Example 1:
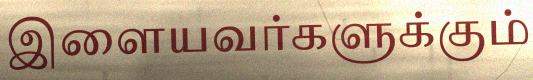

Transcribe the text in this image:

இளையவர்களுக்கும்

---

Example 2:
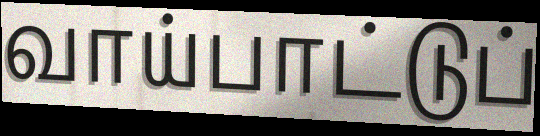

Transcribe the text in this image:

வாய்பாட்டுப்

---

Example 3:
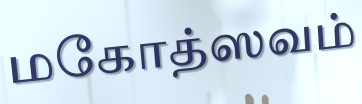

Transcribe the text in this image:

மகோத்ஸவம்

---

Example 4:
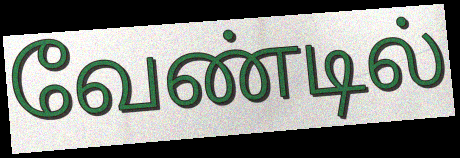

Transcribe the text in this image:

வேண்டில்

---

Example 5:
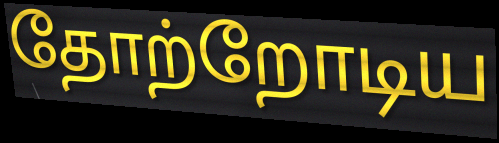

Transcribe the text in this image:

தோற்றோடிய